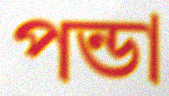
পন্ডা